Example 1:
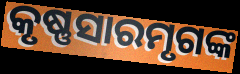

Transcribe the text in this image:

କୃଷ୍ଣସାରମୃଗଙ୍କ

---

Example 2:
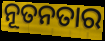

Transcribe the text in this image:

ନୂତନତାର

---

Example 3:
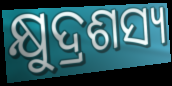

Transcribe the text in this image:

କ୍ଷୁଦ୍ରଶସ୍ୟ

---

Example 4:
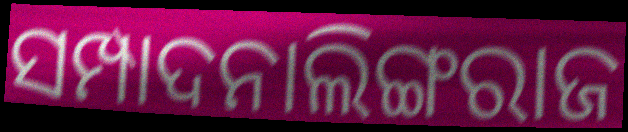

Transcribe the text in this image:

ସମ୍ପାଦନାଲିଙ୍ଗରାଜ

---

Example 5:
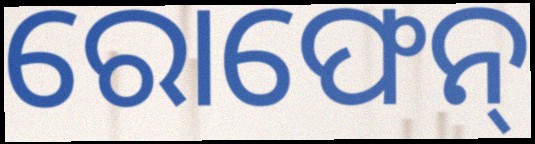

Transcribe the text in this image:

ରୋଫେନ୍